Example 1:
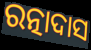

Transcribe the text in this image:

ରତ୍ନାଦାସ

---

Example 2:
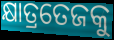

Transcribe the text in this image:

କ୍ଷାତ୍ରତେଜକୁ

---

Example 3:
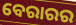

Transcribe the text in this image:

ବେରାରର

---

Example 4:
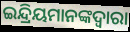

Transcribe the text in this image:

ଇନ୍ଦ୍ରିୟମାନଙ୍କଦ୍ୱାରା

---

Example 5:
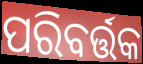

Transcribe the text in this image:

ପରିବର୍ତ୍ତକ